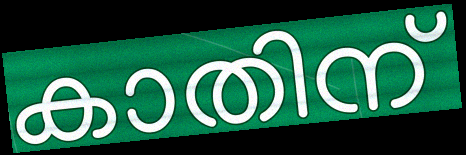
കാതിന്